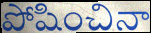
పోషించినా